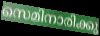
സെമിനാരിക്കു